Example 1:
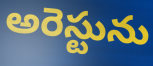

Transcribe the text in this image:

అరెస్టును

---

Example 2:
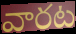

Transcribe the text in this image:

వారట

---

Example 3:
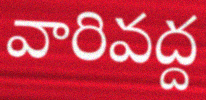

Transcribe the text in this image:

వారివద్ద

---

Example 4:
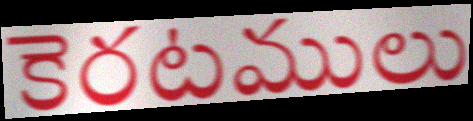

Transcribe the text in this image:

కెరటములు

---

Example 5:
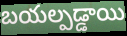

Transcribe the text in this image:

బయల్పడ్డాయి